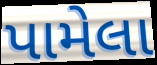
પામેલા